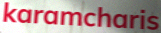
karamcharis